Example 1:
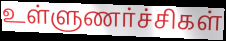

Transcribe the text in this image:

உள்ளுணர்ச்சிகள்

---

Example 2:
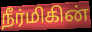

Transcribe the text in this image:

நீர்மிகின்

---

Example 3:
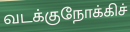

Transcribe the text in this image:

வடக்குநோக்கிச்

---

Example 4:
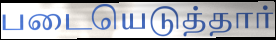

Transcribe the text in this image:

படையெடுத்தார்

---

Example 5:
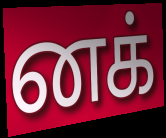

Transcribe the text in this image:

னக்